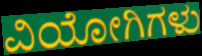
ವಿಯೋಗಿಗಳು